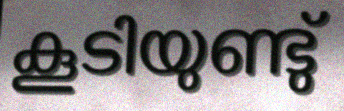
കൂടിയുണ്ടു്